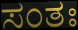
ಸಂತಃ